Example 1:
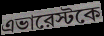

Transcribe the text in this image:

এভারেস্টকে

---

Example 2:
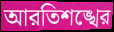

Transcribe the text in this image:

আরতিশঙ্খের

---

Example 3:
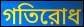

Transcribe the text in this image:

গতিরোধ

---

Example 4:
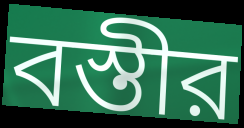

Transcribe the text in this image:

বস্তীর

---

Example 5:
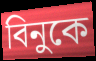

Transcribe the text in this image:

বিনুকে